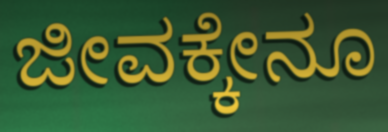
ಜೀವಕ್ಕೇನೂ